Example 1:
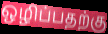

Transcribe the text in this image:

ஒழிப்பதற்கு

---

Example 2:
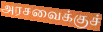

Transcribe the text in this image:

அரசவைக்குச்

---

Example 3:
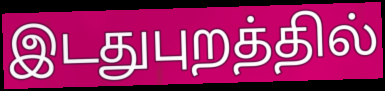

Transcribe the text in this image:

இடதுபுறத்தில்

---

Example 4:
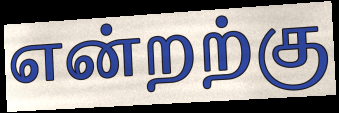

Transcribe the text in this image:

என்றற்கு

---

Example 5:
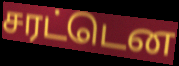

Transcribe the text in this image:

சரட்டென